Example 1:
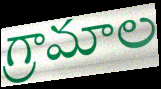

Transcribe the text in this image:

గ్రామాల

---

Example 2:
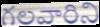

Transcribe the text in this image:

గలవారిని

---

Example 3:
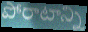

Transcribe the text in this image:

పోరాటాన్ని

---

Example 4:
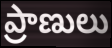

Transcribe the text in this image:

ప్రాణులు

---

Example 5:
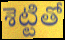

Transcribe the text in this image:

శెట్టితో